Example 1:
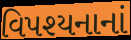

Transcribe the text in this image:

વિપશ્યનાનાં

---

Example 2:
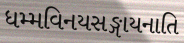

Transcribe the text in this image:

ધમ્મવિનયસઙ્ગાયનાતિ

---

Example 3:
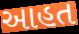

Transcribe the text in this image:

આહત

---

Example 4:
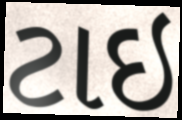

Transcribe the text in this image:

ટાઇ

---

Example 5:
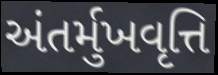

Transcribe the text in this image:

અંતર્મુખવૃત્તિ